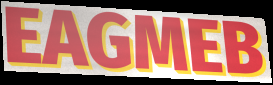
EAGMEB